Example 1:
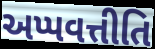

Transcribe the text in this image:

અપ્પવત્તીતિ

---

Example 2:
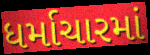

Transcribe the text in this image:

ધર્માચારમાં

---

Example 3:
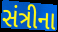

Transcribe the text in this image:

સંત્રીના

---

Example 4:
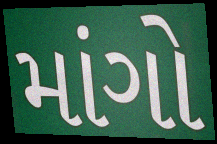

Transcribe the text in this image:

માંગો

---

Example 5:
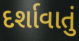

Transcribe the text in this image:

દર્શાવાતું